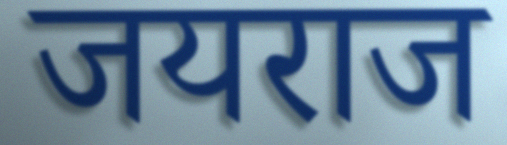
जयराज